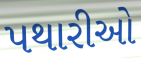
પથારીઓ